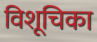
विशूचिका